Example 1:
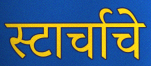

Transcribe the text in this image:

स्टार्चाचे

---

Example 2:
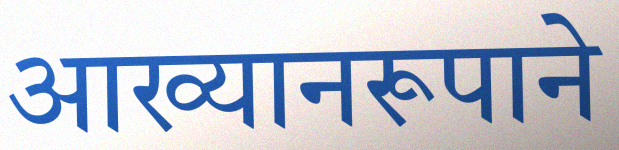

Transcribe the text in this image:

आख्यानरूपाने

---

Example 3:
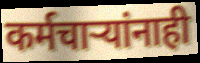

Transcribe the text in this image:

कर्मचार्‍यांनाही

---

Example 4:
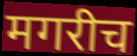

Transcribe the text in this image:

मगरीच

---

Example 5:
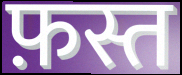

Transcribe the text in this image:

फ़स्त